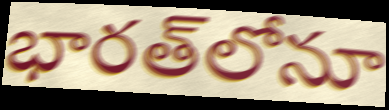
భారత్‌లోనూ